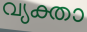
വ്യക്താ